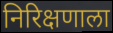
निरिक्षणाला